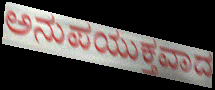
ಅನುಪಯುಕ್ತವಾದ